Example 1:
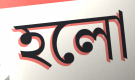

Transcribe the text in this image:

হলো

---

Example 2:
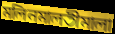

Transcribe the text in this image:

মলিনমালতীমালা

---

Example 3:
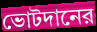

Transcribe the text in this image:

ভোটদানের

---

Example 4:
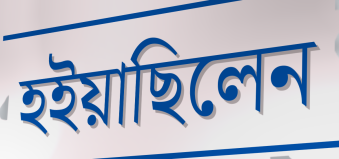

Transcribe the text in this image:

হইয়াছিলেন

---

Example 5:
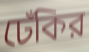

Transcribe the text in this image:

ঢেঁকির